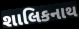
શાલિકનાથ